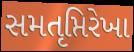
સમતૃપ્તિરેખા